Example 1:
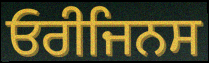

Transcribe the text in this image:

ਓਰੀਜਿਨਸ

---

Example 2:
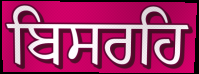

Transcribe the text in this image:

ਬਿਸਰਹਿ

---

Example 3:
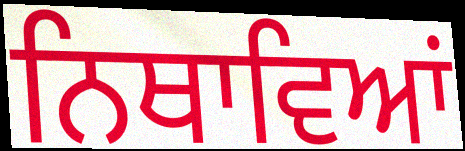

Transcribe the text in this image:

ਨਿਥਾਵਿਆਂ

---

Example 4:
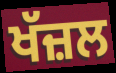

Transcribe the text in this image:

ਖੱਜ਼ਲ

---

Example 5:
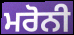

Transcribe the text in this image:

ਮਰੋਨੀ